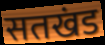
सतखंड